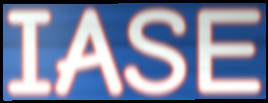
IASE